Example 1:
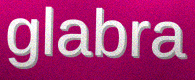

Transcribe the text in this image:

glabra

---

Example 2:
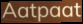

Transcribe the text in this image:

Aatpaat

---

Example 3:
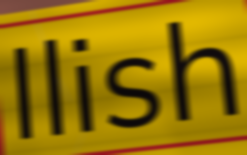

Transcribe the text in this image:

Ilish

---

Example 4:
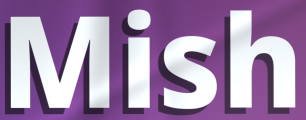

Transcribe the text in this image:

Mish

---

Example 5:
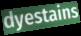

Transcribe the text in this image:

dyestains